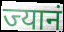
ज्यानं